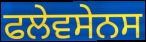
ਫਲੇਵਸੇਨਸ